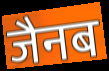
जैनब